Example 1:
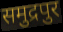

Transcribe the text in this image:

समुद्रपुर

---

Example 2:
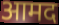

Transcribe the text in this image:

आमद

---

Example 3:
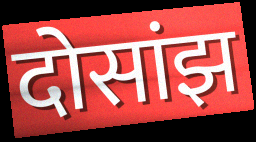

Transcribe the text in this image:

दोसांझ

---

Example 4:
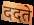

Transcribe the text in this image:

ददते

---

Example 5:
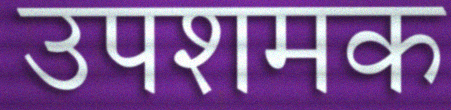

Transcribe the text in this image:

उपशमक